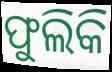
ଫୁଲିକି